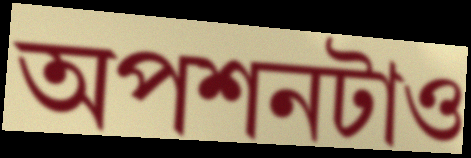
অপশনটাও